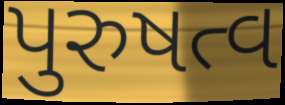
પુરુષત્વ